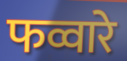
फव्‍वारे